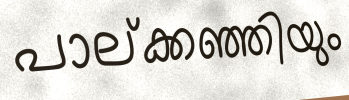
പാല്ക്കഞ്ഞിയും